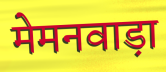
मेमनवाड़ा